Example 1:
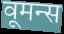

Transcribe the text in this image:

वूमन्स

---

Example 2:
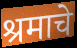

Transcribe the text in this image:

श्रमाचे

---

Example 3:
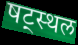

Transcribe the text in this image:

षट्स्थल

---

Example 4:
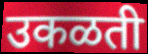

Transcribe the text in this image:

उकळती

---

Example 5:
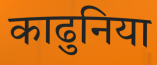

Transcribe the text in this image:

काढुनिया